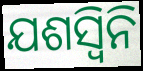
ଯଶସ୍ୱିନି